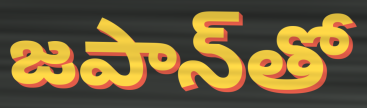
జపాన్‌తో